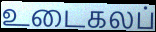
உடைகலப்